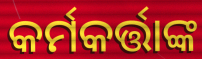
କର୍ମକର୍ତ୍ତାଙ୍କ